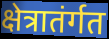
क्षेत्रातंर्गत